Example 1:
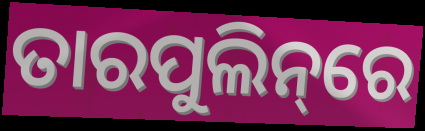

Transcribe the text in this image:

ତାରପୁଲିନ୍‌ରେ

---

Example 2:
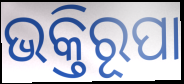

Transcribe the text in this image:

ଭକ୍ତିରୂପା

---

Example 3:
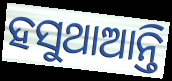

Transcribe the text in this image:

ହସୁଥାଆନ୍ତି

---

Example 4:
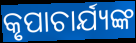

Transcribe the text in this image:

କୃପାଚାର୍ଯ୍ୟଙ୍କ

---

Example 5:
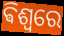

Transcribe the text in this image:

ଵିଶ୍ୱରେ